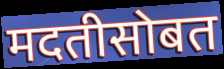
मदतीसोबत